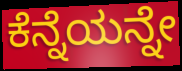
ಕೆನ್ನೆಯನ್ನೇ